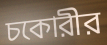
চকোরীর